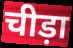
चीड़ा